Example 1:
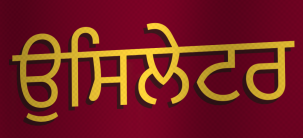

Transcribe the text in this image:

ਉਸਿਲੇਟਰ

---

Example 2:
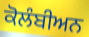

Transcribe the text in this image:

ਕੋਲੰਬੀਅਨ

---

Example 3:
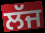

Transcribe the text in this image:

ਲੱਜ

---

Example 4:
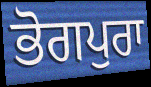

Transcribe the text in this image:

ਭੋਗਪੁਰਾ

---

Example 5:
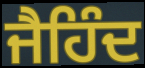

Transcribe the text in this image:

ਜੈਹਿੰਦ